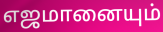
எஜமானையும்